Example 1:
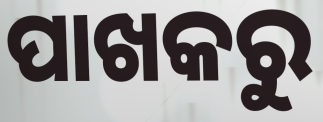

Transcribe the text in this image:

ପାଖକରୁ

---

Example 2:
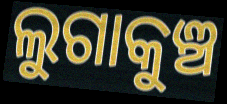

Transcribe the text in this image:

ଲୁଗାକୁଞ୍ଚ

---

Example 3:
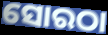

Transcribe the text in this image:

ସୋରଠା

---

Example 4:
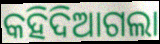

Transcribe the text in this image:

କହିଦିଆଗଲା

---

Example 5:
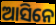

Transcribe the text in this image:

ଆସିନେ